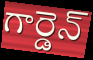
గార్డెన్